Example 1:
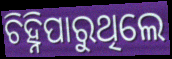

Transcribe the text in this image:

ଚିହ୍ନିପାରୁଥିଲେ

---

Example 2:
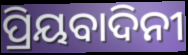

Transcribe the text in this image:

ପ୍ରିୟବାଦିନୀ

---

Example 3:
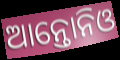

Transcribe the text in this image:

ଆନ୍ତୋନିଓ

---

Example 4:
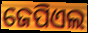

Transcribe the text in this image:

ଜେପିଏଲ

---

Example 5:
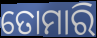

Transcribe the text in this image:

ତୋମାରି